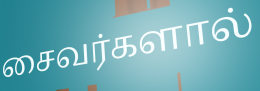
சைவர்களால்